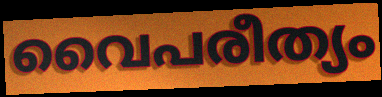
വൈപരീത്യം